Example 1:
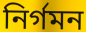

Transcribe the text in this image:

নির্গমন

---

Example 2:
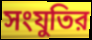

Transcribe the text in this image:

সংযুতির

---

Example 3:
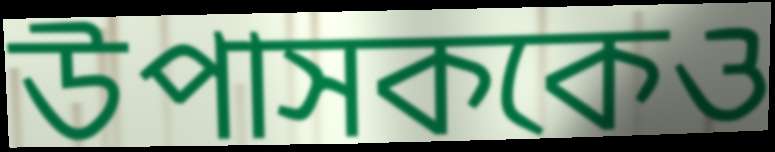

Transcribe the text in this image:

উপাসককেও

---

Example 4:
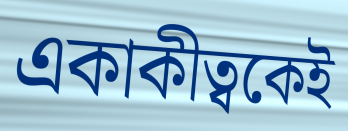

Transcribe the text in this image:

একাকীত্বকেই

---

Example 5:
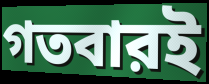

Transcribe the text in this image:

গতবারই